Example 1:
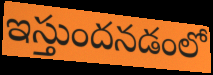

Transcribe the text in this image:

ఇస్తుందనడంలో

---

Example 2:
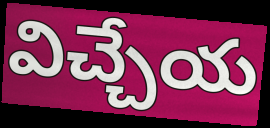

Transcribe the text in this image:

విచ్చేయ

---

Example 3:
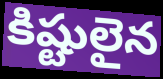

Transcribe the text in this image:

కిష్టులైన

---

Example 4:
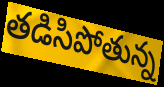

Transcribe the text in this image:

తడిసిపోతున్న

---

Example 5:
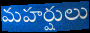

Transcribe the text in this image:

మహర్షులు